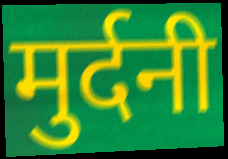
मुर्दनी